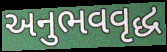
અનુભવવૃદ્ધ